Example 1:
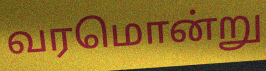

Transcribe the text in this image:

வரமொன்று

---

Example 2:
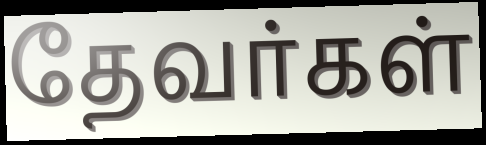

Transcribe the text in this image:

தேவர்கள்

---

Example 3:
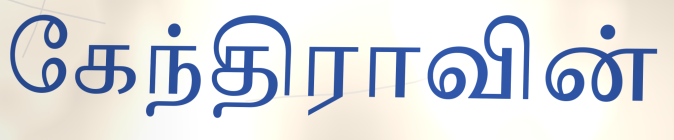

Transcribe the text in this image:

கேந்திராவின்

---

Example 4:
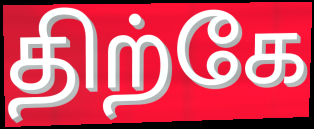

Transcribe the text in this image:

திற்கே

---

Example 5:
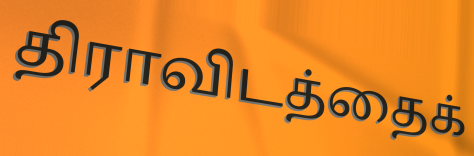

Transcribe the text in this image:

திராவிடத்தைக்